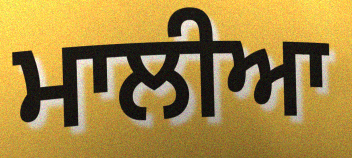
ਮਾਲੀਆ